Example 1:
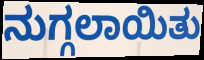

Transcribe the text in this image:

ನುಗ್ಗಲಾಯಿತು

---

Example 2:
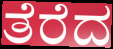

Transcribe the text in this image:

ತೆರೆದ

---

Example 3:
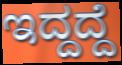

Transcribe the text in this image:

ಇದ್ದದ್ದೆ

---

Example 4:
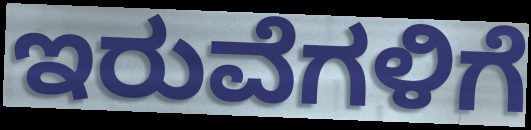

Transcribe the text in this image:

ಇರುವೆಗಳಿಗೆ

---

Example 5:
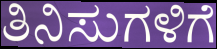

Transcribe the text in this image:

ತಿನಿಸುಗಳಿಗೆ